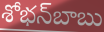
శోభన్‌బాబు